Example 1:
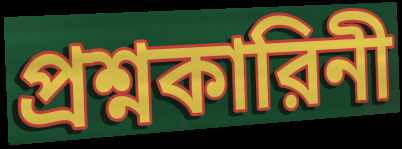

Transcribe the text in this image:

প্রশ্নকারিনী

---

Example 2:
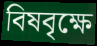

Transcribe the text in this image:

বিষবৃক্ষে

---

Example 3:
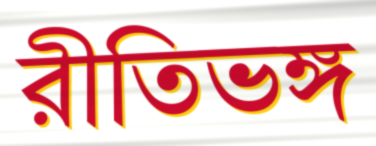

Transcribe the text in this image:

রীতিভঙ্গ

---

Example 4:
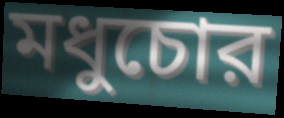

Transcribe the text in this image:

মধুচোর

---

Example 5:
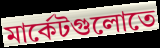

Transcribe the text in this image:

মার্কেটগুলোতে